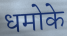
धमोके